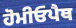
ਹੋਮੀਓਪੈਥ